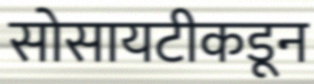
सोसायटीकडून